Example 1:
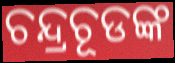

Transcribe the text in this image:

ଚନ୍ଦ୍ରଚୂଡଙ୍କ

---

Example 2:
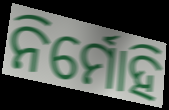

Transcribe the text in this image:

ନିର୍ମୋହି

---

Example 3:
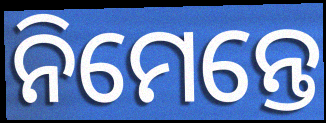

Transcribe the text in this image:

ନିମେନ୍ତେ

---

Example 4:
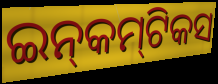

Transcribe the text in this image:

ଇନ୍‍କମ୍‍ଟିକସ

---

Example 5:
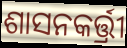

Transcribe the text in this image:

ଶାସନକର୍ତ୍ତ୍ରୀ